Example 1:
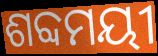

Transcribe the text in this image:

ଶବ୍ଦମୟୀ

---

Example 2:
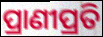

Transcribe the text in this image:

ପ୍ରାଣୀପ୍ରତି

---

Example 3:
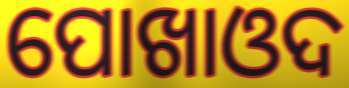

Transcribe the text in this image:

ପୋଖାଓଦ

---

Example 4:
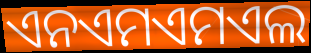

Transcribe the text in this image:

ଏନଏମଏମଏଲ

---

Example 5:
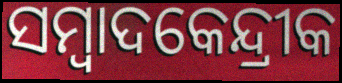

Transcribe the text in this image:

ସମ୍ୱାଦକେନ୍ଦ୍ରୀକ